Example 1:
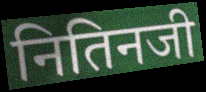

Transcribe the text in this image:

नितिनजी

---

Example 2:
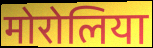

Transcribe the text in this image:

मोरोलिया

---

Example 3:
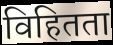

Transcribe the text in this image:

विहितता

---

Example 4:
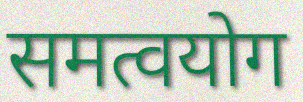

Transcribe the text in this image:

समत्वयोग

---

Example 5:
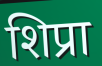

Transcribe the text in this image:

शिप्रा